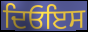
ਦਿਓਇਸ